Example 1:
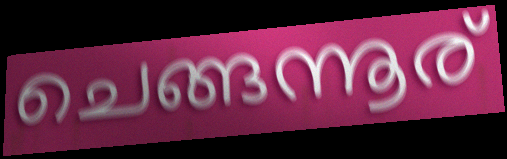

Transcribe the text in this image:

ചെങ്ങന്നൂര്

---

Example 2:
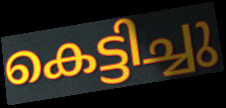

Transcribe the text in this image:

കെട്ടിച്ചു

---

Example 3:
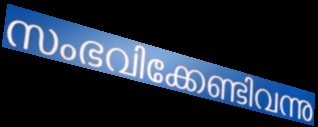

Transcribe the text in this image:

സംഭവിക്കേണ്ടിവന്നു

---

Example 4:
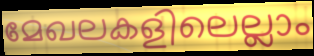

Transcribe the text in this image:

മേഖലകളിലെല്ലാം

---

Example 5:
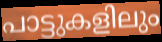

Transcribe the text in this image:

പാട്ടുകളിലും